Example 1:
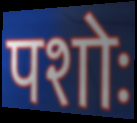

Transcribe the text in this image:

पशोः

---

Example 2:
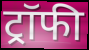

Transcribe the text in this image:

ट्रॉफी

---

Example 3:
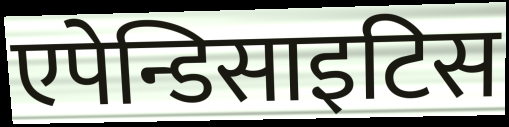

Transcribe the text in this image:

एपेन्डिसाइटिस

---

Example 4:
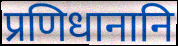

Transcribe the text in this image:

प्रणिधानानि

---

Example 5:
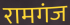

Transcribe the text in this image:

रामगंज